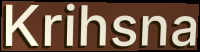
Krihsna